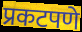
प्रकटपणे